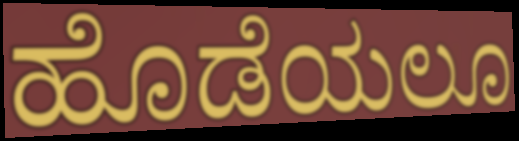
ಹೊಡೆಯಲೂ